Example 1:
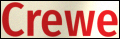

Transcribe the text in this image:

Crewe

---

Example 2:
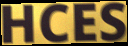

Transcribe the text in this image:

HCES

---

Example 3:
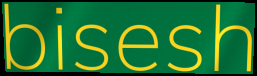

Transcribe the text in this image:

bisesh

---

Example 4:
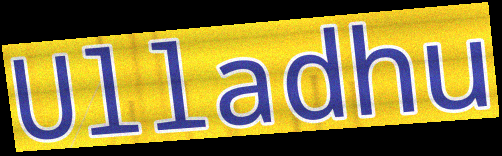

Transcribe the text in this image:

Ulladhu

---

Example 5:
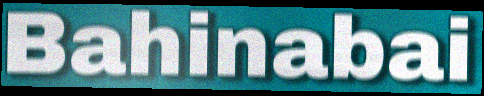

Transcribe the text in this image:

Bahinabai